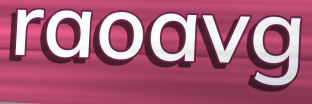
raoavg